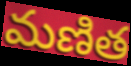
మణిత